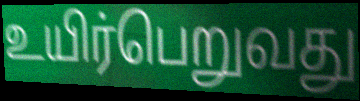
உயிர்பெறுவது